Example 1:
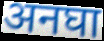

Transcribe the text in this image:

अनघा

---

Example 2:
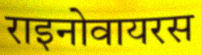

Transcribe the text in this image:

राइनोवायरस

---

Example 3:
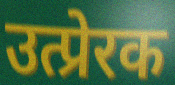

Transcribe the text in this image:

उत्प्रेरक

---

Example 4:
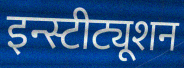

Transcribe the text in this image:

इन्स्टीट्यूशन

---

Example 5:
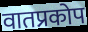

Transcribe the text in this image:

वातप्रकोप